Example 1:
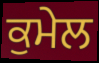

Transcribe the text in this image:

ਕੁਮੇਲ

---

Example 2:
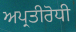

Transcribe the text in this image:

ਅਪ੍ਰਤੀਰੋਧੀ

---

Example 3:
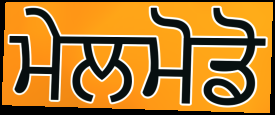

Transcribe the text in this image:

ਮੇਲਮੋਡੋ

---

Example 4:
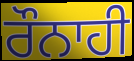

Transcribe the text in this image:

ਰੌਨਾਹੀ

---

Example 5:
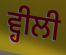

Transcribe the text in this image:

ਵ੍ਹੀਲੀ